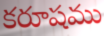
కరూషము